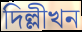
দিল্লীখন